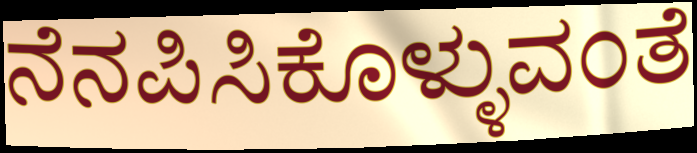
ನೆನಪಿಸಿಕೊಳ್ಳುವಂತೆ